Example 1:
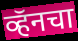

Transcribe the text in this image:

व्हॅनचा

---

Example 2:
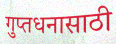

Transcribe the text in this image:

गुप्तधनासाठी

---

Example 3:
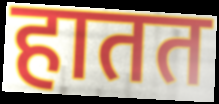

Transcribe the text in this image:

हातत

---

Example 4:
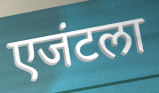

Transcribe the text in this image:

एजंटला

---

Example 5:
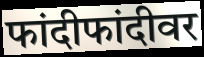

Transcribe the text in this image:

फांदीफांदीवर